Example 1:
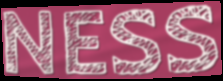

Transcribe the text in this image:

NESS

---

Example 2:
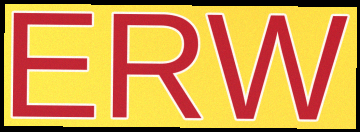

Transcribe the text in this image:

ERW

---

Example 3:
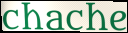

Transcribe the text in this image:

chache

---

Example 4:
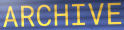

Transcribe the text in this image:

ARCHIVE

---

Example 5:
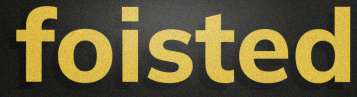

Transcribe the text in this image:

foisted